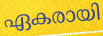
ഏകരായി